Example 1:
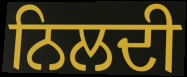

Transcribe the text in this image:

ਨਿਲਦੀ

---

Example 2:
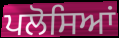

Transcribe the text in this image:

ਪਲੋਸਿਆਂ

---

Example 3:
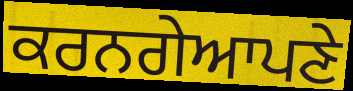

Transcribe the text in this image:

ਕਰਨਗੇਆਪਣੇ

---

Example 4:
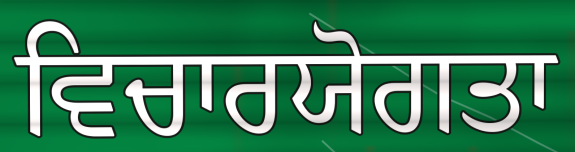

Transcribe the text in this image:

ਵਿਚਾਰਯੋਗਤਾ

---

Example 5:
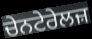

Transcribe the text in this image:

ਚੇਨਟੇਰੇਲਜ਼